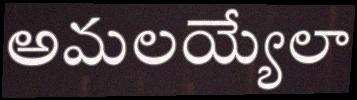
అమలయ్యేలా